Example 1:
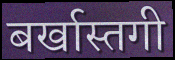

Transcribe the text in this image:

बर्खास्तगी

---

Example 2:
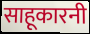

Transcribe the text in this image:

साहूकारनी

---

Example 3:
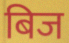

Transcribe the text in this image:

बिज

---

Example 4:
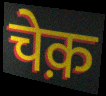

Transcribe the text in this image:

चेक़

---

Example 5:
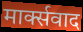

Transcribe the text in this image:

मार्क्सवाद